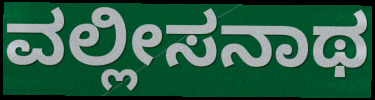
ವಲ್ಲೀಸನಾಥ